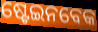
ଷ୍ଟେଇନବେକ